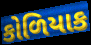
કોળિયાક